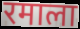
रमाला